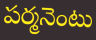
పర్మనెంటు